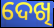
ଦେଖି